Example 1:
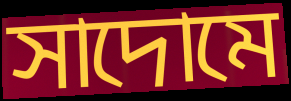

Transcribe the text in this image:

সাদোমে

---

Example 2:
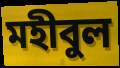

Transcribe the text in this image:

মহীবুল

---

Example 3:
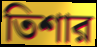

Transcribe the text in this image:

তিশার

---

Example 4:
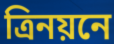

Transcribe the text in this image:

ত্রিনয়নে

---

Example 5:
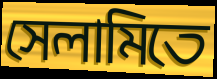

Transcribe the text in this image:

সেলামিতে